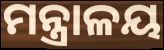
ମନ୍ତ୍ରାଳୟ